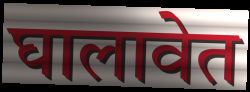
घालावेत